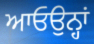
ਆਓਉਨ੍ਹਾਂ